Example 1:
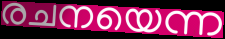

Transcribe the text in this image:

രചനയെന്ന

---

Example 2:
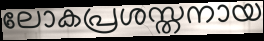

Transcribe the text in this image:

ലോകപ്രശസ്തനായ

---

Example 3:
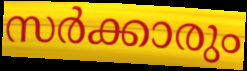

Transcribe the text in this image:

സർക്കാരും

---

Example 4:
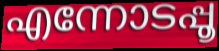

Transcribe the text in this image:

എന്നോടപ്പൂ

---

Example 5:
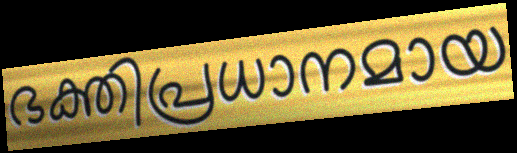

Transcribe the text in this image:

ഭക്തിപ്രധാനമായ